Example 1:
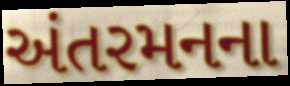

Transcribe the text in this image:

અંતરમનના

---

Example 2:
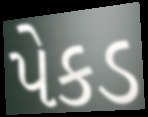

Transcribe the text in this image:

પેકડ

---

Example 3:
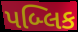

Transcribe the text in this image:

પબ્લિક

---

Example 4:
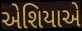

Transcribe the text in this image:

એશિયાએ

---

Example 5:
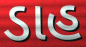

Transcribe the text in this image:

ડાહ